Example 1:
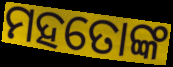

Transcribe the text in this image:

ମହତୋଙ୍କ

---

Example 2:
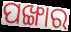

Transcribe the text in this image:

ପଙ୍ଖାର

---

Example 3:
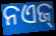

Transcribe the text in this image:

ନଏଜ୍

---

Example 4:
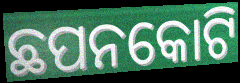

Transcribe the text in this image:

ଛପନକୋଟି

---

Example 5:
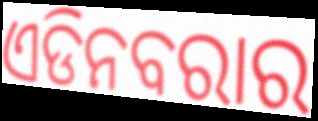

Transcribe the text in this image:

ଏଡିନବରାର